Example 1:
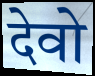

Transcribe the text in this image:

देवो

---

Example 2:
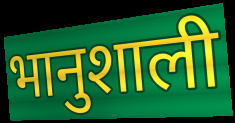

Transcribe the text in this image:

भानुशाली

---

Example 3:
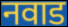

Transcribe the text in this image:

नवाड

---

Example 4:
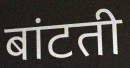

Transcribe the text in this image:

बांटती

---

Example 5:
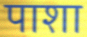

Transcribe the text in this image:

पाशा